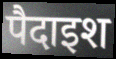
पैदाइश